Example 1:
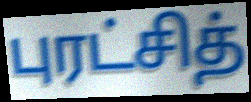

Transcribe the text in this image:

புரட்சித்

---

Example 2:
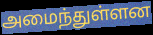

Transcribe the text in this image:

அமைந்துள்ளன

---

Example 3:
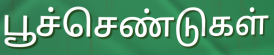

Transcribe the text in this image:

பூச்செண்டுகள்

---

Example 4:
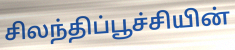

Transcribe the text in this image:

சிலந்திப்பூச்சியின்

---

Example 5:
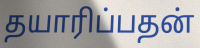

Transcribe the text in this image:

தயாரிப்பதன்